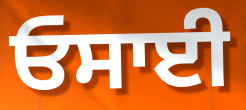
ਓਸਾਈ